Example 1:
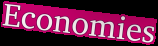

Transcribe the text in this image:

Economies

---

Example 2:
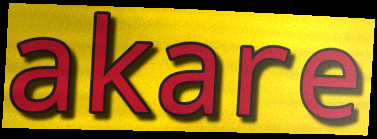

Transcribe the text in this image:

akare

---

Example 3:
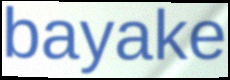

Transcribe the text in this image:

bayake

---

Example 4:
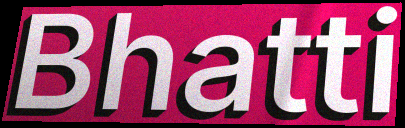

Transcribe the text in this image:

Bhatti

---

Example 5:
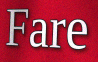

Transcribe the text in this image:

Fare